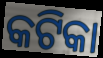
କଟିକା